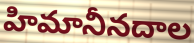
హిమానీనదాల